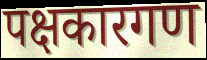
पक्षकारगण